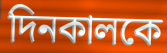
দিনকালকে